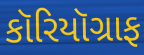
કૉરિયૉગ્રાફ